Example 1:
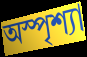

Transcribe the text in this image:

অস্পৃশ্যা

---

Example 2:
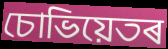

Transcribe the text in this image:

চোভিয়েতৰ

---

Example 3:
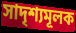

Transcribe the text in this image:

সাদৃশ্যমূলক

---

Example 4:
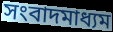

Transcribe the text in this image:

সংবাদমাধ্যম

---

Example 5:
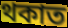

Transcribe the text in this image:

থকাত